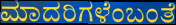
ಮಾದರಿಗಳೆಂಬಂತೆ